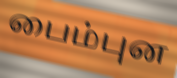
பைம்புன